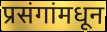
प्रसंगांमधून